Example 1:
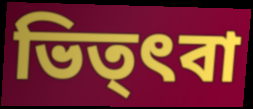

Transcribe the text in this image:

ভিত্ৎবা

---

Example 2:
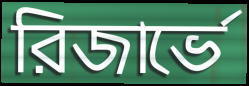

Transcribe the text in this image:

রিজার্ভে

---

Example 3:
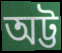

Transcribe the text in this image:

অট্ট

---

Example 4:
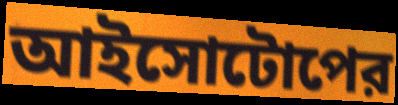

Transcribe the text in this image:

আইসোটোপের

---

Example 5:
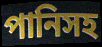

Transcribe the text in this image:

পানিসহ